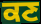
ਕਣ